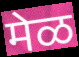
मेळ